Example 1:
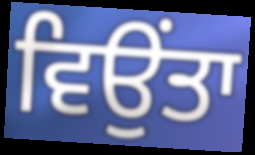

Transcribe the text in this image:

ਵਿਉਂਤਾ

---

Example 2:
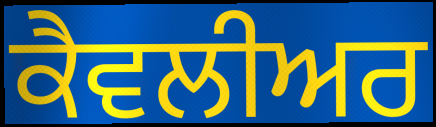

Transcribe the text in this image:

ਕੈਵਲੀਅਰ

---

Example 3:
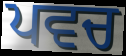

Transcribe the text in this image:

ਪਵਚ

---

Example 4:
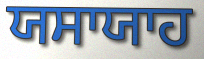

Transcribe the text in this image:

ਯਸਾਯਾਹ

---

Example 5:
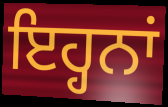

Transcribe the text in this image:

ਇਹ੍ਹਨਾਂ